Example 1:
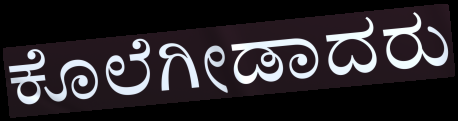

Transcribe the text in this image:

ಕೊಲೆಗೀಡಾದರು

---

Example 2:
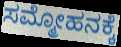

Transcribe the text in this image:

ಸಮ್ಮೋಹನಕ್ಕೆ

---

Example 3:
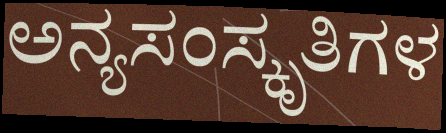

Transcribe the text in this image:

ಅನ್ಯಸಂಸ್ಕೃತಿಗಳ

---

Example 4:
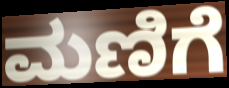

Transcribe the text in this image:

ಮಣಿಗೆ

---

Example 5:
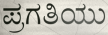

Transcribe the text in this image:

ಪ್ರಗತಿಯು